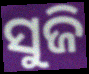
ସୁଜି